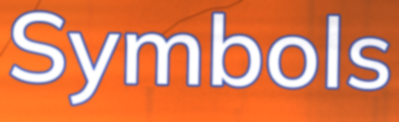
Symbols